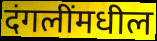
दंगलींमधील